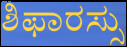
ಶಿಫಾರಸ್ಸು